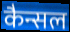
कैन्सल